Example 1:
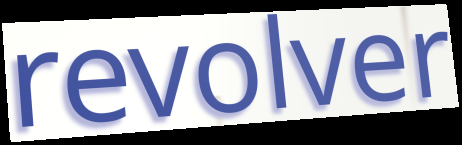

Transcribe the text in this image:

revolver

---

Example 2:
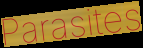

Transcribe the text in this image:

Parasites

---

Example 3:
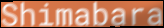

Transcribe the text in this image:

Shimabara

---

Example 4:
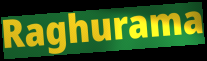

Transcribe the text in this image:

Raghurama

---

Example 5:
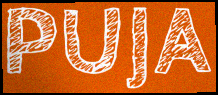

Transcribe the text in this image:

PUJA